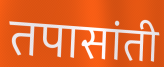
तपासांती